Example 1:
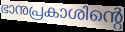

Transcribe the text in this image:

ഭാനുപ്രകാശിന്റെ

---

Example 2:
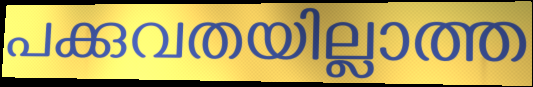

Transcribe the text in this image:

പക്കുവതയില്ലാത്ത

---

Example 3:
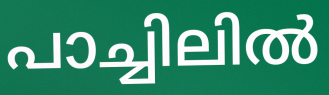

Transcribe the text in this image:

പാച്ചിലിൽ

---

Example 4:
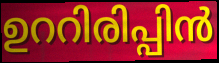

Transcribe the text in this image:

ഉററിരിപ്പിൻ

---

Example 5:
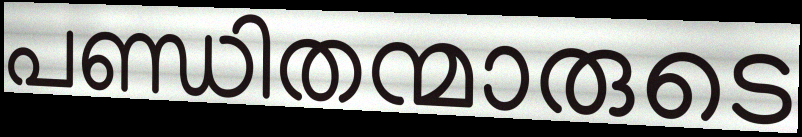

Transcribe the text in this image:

പണ്ഡിതന്മാരുടെ